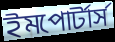
ইমপোর্টার্স